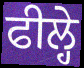
ਫੀਲ੍ਹੇ